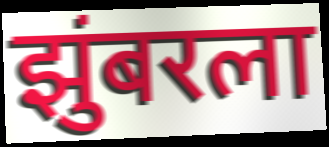
झुंबरला